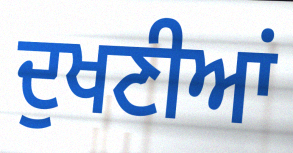
ਦੁਖਣੀਆਂ